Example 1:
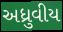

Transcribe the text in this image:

અધ્રુવીય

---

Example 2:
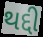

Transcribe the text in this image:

થદ્દી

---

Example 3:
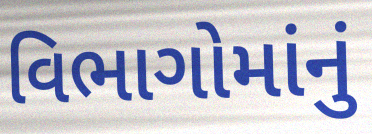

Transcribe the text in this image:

વિભાગોમાંનું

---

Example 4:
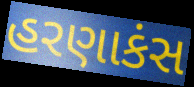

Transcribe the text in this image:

હરણાકંસ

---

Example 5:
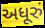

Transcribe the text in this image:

અધૂરું